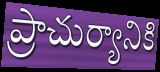
ప్రాచుర్యానికి